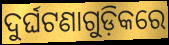
ଦୁର୍ଘଟଣାଗୁଡ଼ିକରେ